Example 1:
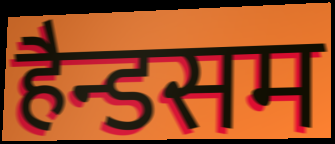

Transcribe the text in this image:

हैन्डसम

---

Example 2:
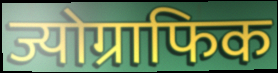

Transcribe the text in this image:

ज्योग्राफिक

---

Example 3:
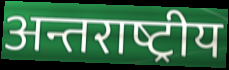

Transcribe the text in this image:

अन्तराष्ट्रीय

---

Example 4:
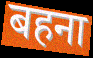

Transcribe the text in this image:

बहना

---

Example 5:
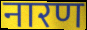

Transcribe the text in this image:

नारण